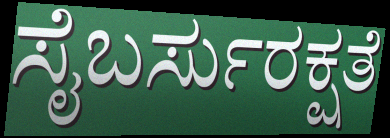
ಸೈಬರ್ಸುರಕ್ಷತೆ